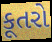
કૂતરો